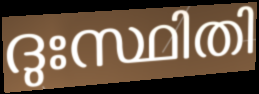
ദുഃസ്ഥിതി